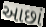
આછાં